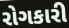
રોગકારી